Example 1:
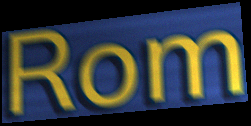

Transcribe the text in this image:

Rom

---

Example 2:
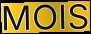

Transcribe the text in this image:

MOIS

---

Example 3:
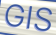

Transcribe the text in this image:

GIS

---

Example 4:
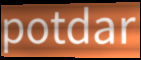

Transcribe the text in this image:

potdar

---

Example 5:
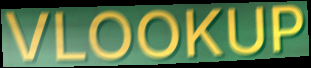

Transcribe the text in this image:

VLOOKUP